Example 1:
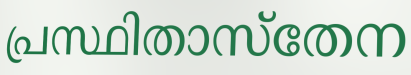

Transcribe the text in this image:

പ്രസ്ഥിതാസ്തേന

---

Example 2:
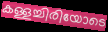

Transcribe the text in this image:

കള്ളച്ചിരിയോടെ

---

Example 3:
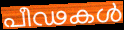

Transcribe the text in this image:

പീഢകൾ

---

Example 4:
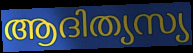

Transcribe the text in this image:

ആദിത്യസ്യ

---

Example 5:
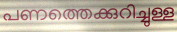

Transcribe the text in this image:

പണത്തെക്കുറിച്ചുള്ള